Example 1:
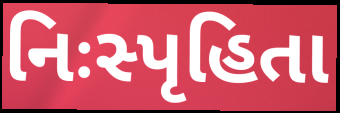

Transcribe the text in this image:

નિઃસ્પૃહિતા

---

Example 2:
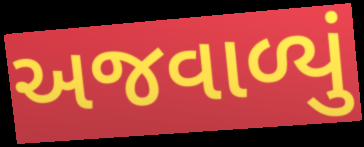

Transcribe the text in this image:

અજવાળ્યું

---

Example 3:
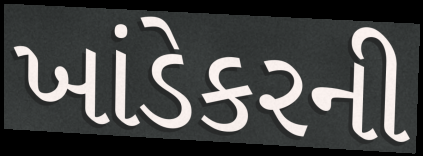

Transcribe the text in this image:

ખાંડેકરની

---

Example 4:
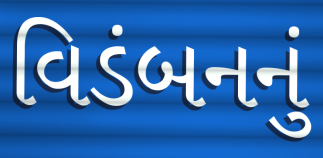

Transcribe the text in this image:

વિડંબનનું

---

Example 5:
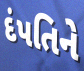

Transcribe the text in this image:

દંપતિને